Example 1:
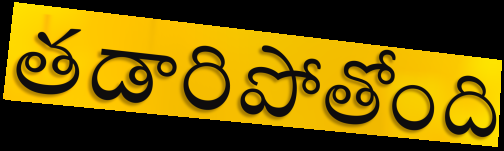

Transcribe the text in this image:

తడారిపోతోంది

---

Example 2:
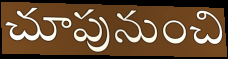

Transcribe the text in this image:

చూపునుంచి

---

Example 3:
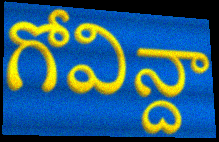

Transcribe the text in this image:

గోవిన్దా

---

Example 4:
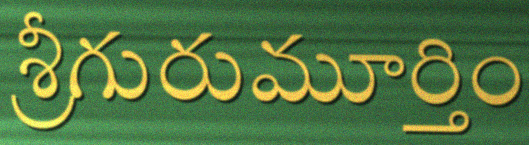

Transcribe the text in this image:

శ్రీగురుమూర్తిం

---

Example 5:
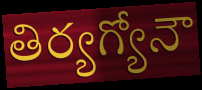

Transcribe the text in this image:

తిర్యగ్యోనౌ